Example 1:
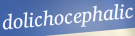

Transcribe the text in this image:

dolichocephalic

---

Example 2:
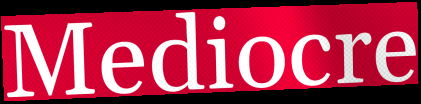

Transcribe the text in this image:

Mediocre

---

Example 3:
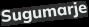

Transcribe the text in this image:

Sugumarje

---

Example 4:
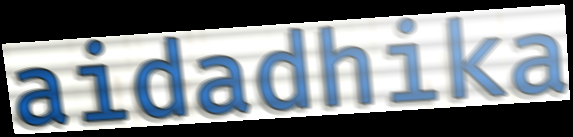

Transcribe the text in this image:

aidadhika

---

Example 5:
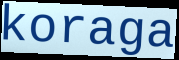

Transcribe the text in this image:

koraga